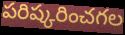
పరిష్కరించగల